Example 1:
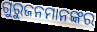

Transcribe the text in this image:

ଗୁରୁଜନମାନଙ୍କର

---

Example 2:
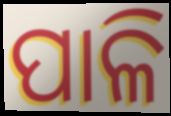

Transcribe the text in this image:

ପାଳି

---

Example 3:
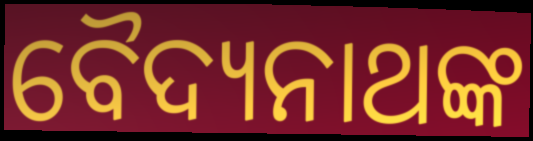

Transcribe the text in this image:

ବୈଦ୍ୟନାଥଙ୍କ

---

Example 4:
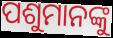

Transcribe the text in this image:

ପଶୁମାନଙ୍କୁ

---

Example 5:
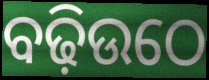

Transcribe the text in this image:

ବଢ଼ିଉଠେ